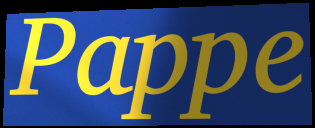
Pappe